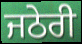
ਜਠੇਰੀ